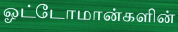
ஓட்டோமான்களின்